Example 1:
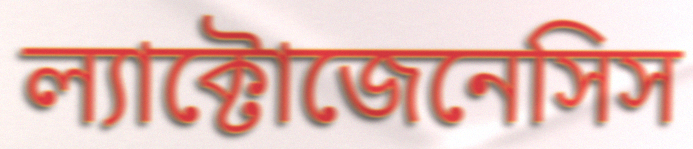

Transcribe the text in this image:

ল্যাক্টোজেনেসিস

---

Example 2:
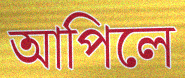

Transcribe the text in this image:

আপিলে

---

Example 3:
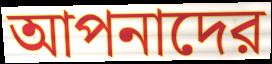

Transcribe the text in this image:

আপনাদের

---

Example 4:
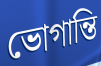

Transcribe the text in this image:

ভোগান্তি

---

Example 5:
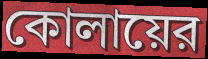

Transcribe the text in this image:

কোলায়ের